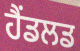
ਹੈਂਡਲਡ